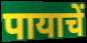
पायाचें